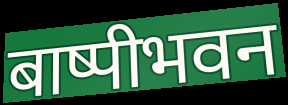
बाष्पीभवन